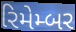
રિમેમ્બર